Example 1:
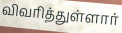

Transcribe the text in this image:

விவரித்துள்ளார்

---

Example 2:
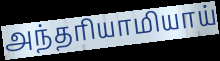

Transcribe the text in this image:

அந்தரியாமியாய்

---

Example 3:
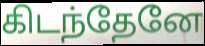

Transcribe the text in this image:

கிடந்தேனே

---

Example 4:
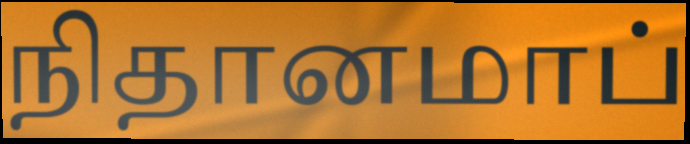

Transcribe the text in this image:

நிதானமாப்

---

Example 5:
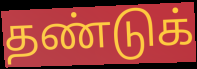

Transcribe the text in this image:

தண்டுக்